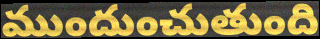
ముందుంచుతుంది